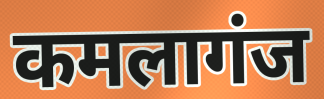
कमलागंज